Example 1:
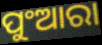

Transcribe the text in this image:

ପୁଂଆରା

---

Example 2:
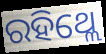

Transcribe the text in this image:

ରହିଥ୍ଲେ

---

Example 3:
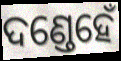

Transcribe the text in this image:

ଦଣ୍ଡେହେଁ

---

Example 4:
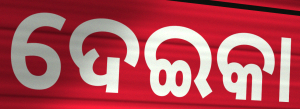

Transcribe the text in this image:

ଦେଇକା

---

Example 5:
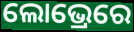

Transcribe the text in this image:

ଲୋଭ୍ରେରେ